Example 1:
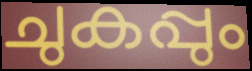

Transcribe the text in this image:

ചുകപ്പും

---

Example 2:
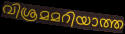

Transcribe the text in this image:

വിശ്രമമറിയാത്ത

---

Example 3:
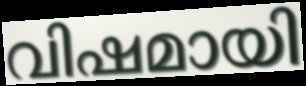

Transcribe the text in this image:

വിഷമായി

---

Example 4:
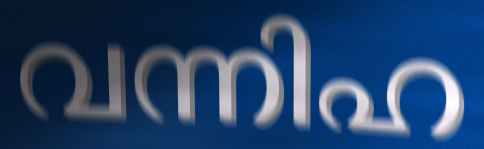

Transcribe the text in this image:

വന്നിഹ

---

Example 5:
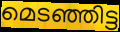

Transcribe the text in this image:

മെടഞ്ഞിട്ട